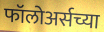
फॉलोअर्सच्या